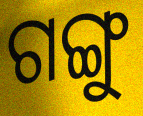
ଗଙ୍ଗୁ